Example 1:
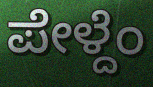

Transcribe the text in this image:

ಪೇಳ್ದೆಂ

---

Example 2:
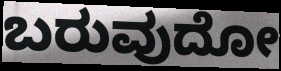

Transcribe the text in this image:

ಬರುವುದೋ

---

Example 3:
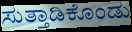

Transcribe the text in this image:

ಸುತ್ತಾಡಿಕೊಂಡು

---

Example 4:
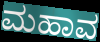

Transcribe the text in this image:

ಮಹಾವ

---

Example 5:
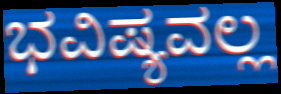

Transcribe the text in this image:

ಭವಿಷ್ಯವಲ್ಲ